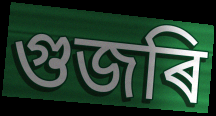
গুজৰি